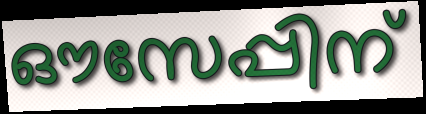
ഔസേപ്പിന്